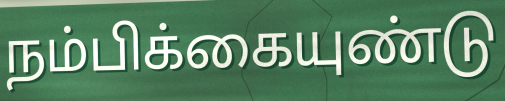
நம்பிக்கையுண்டு